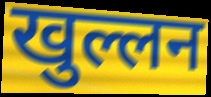
खुल्लन